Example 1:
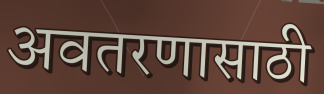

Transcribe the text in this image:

अवतरणासाठी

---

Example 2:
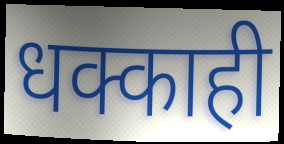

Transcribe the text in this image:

धक्काही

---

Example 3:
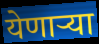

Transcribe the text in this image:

येणाऱ्या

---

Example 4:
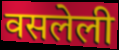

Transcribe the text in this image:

वसलेली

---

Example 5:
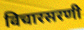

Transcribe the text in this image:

विचारसरणी